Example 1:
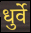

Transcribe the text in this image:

धुर्वे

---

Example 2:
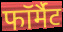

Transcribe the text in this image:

फॉर्मैट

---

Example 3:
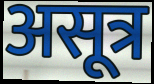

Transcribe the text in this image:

असूत्र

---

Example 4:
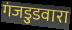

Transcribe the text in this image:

गंजडुडवारा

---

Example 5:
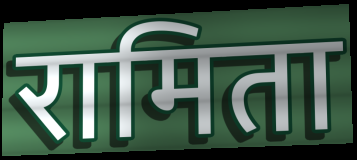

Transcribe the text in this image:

रामिता